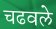
चढवले